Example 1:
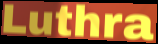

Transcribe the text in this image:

Luthra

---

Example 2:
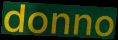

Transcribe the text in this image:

donno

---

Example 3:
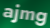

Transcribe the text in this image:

ajmg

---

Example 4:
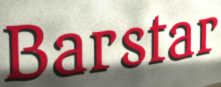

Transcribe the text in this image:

Barstar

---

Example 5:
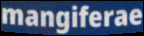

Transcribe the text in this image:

mangiferae